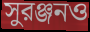
সুরঞ্জনও